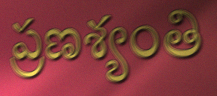
ప్రణశ్యంతి